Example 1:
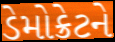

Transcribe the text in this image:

ડેમોક્રેટને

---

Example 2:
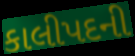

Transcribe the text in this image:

કાલીપદની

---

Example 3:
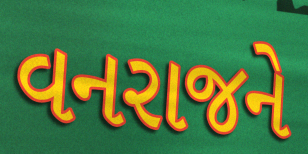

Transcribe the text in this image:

વનરાજને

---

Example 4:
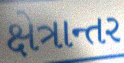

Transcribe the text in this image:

ક્ષેત્રાન્તર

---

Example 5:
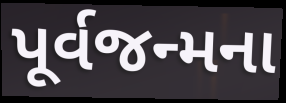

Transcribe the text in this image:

પૂર્વજન્મના